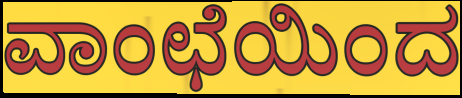
ವಾಂಛೆಯಿಂದ